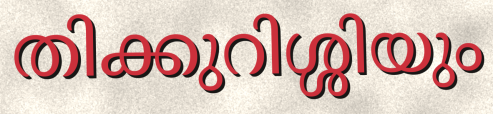
തിക്കുറിശ്ശിയും